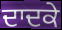
ਦਾਦਕੇ